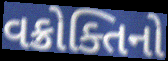
વક્રોક્તિનો